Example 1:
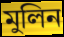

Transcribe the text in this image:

মুলিন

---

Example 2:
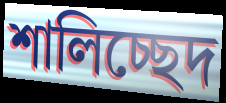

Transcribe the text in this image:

শালিচ্ছেদ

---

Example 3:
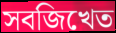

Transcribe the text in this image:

সবজিখেত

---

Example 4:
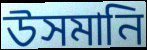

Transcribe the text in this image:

উসমানি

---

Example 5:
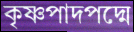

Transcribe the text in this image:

কৃষ্ণপাদপদ্মে